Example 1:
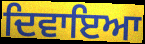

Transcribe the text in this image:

ਦਿਵਾਇਆ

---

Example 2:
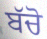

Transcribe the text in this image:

ਬੱਚੋ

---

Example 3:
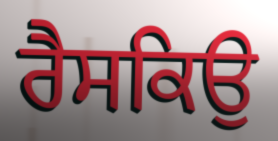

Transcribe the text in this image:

ਰੈਸਕਿਉ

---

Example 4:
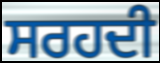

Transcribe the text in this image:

ਸਰਹਦੀ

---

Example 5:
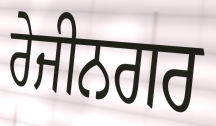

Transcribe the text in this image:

ਰੇਜੀਨਗਰ